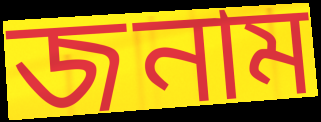
জনাম